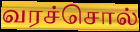
வரச்சொல்